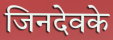
जिनदेवके